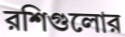
রশিগুলোর